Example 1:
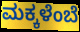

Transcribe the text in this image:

ಮಕ್ಕಳೆಂಬೆ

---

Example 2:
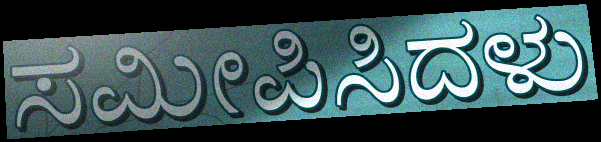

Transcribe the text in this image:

ಸಮೀಪಿಸಿದಳು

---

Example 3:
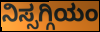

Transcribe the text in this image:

ನಿಸ್ಸಗ್ಗಿಯಂ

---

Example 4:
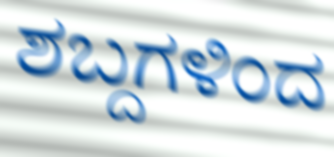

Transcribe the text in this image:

ಶಬ್ದಗಳಿಂದ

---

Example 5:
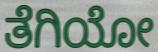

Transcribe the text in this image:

ತೆಗಿಯೋ